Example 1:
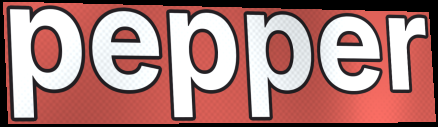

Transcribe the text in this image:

pepper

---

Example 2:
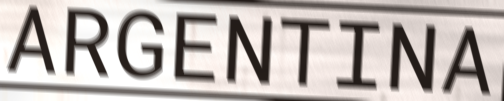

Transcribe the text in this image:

ARGENTINA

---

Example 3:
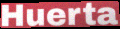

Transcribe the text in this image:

Huerta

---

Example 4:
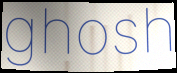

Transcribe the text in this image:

ghosh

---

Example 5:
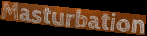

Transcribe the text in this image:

Masturbation